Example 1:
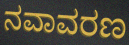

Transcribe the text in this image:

ನವಾವರಣ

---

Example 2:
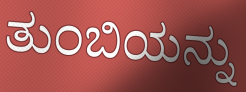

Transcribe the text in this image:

ತುಂಬಿಯನ್ನು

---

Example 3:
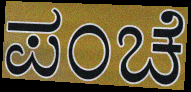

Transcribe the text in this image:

ಪಂಚೆ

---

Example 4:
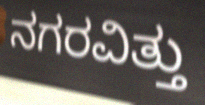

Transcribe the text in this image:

ನಗರವಿತ್ತು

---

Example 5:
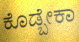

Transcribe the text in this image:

ಕೊಡ್ಬೇಕಾ